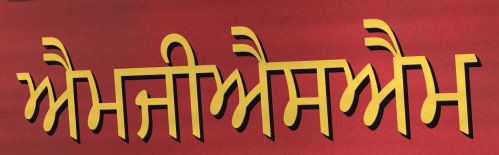
ਐਮਜੀਐਸਐਮ